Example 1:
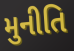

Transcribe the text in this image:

મુનીતિ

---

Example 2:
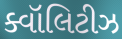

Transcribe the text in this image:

ક્વૉલિટીઝ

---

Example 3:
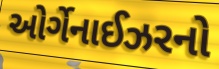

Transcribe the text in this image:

ઓર્ગેનાઈઝરનો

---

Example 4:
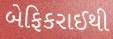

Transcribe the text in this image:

બેફિકરાઈથી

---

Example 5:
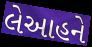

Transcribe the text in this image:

લેઆહને